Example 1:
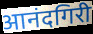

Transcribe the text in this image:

आनंदगिरी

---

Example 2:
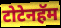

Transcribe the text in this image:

टोटेनहॅम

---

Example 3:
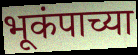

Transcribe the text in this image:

भूकंपाच्या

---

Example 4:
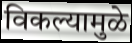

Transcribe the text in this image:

विकल्यामुळे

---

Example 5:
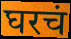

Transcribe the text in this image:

घरचं